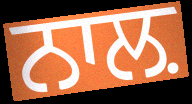
ਨਾਲ਼